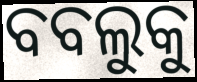
ବବଲୁକୁ